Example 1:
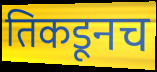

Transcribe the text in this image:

तिकडूनच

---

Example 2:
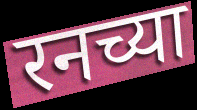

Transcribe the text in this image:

रनच्या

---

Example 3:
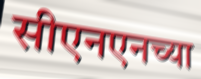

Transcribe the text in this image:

सीएनएनच्या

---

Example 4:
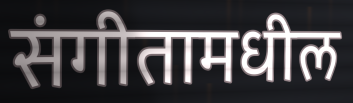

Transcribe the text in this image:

संगीतामधील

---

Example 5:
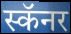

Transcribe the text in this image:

स्कॅनर